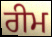
ਰੀਮ